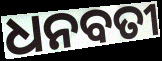
ଧନବତୀ